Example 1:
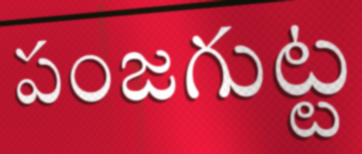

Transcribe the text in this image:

పంజగుట్ట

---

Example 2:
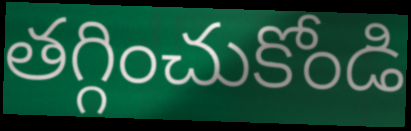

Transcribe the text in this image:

తగ్గించుకోండి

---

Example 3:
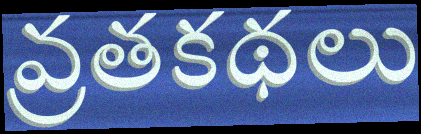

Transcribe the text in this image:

వ్రతకథలు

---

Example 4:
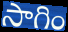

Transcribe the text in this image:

సాగిం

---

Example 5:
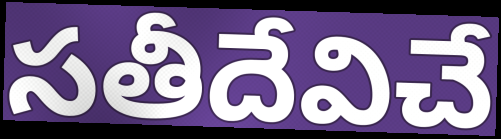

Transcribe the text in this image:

సతీదేవిచే